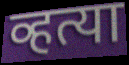
व्हत्या